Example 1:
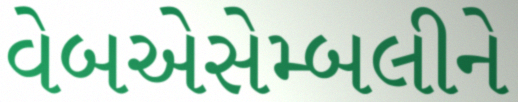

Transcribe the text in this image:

વેબએસેમ્બલીને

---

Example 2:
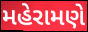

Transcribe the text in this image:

મહેરામણે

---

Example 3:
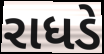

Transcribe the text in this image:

રાધડે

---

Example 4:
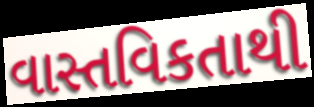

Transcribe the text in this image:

વાસ્તવિકતાથી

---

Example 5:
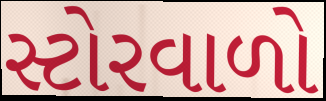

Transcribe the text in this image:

સ્ટોરવાળો